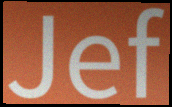
Jef